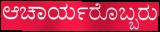
ಆಚಾರ್ಯರೊಬ್ಬರು